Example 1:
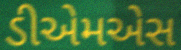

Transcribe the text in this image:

ડીએમએસ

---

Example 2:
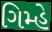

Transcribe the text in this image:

ગિમ્હે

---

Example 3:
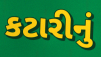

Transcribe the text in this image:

કટારીનું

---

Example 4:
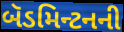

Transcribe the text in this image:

બૅડમિન્ટનની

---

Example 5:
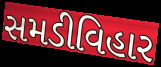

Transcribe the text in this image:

સમડીવિહાર